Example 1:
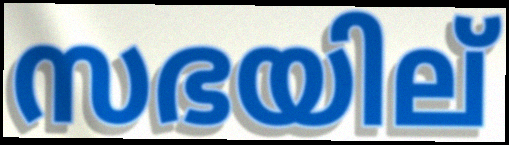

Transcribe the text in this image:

സഭയില്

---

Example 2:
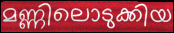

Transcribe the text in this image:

മണ്ണിലൊടുക്കിയ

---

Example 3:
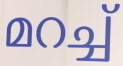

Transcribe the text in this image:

മറച്ച്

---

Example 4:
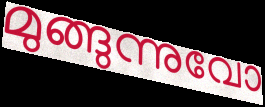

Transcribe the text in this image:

മുങ്ങുന്നുവോ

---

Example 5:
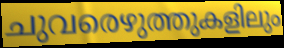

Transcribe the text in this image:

ചുവരെഴുത്തുകളിലും